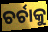
ଚର୍ଚାକୁ